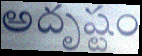
అదృష్టం